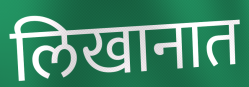
लिखानात